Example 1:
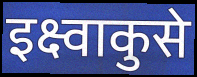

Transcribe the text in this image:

इक्ष्वाकुसे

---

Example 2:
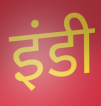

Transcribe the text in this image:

इंडी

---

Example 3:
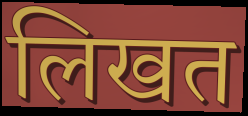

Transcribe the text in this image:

लिखत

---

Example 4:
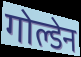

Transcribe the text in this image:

गोल्डेन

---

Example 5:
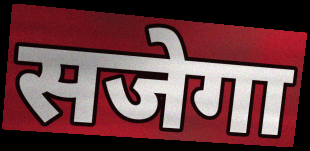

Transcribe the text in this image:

सजेगा